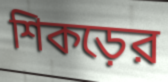
শিকড়ের